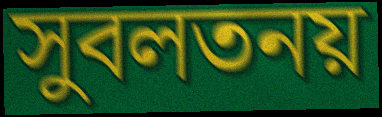
সুবলতনয়